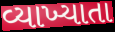
વ્યાખ્યાતા